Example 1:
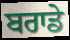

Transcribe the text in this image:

ਬਰਾਡੇ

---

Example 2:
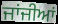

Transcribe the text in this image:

ਜਾਂਜੀਆਂ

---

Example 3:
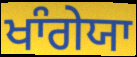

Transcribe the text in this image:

ਖਾੰਗੇਯਾ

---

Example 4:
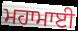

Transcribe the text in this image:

ਮਹਾਮਾਈ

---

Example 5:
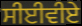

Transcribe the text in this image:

ਸੀਈਵੀਏ